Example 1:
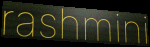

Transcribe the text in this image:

rashmini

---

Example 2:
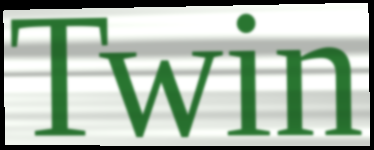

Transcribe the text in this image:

Twin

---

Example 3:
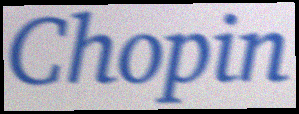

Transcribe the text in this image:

Chopin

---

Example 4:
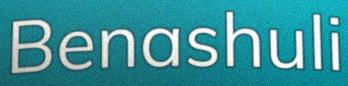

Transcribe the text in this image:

Benashuli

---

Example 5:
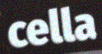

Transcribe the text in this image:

cella